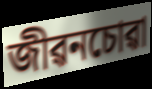
জীৱনচোৱা